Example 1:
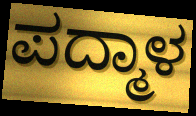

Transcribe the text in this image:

ಪದ್ಮಾಳ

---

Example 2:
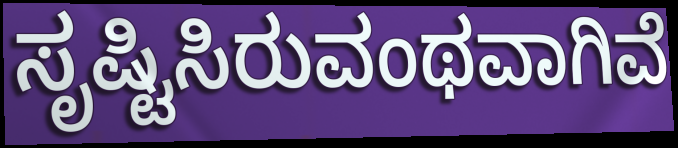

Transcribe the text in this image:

ಸೃಷ್ಟಿಸಿರುವಂಥವಾಗಿವೆ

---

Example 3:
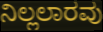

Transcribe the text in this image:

ನಿಲ್ಲಲಾರವು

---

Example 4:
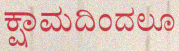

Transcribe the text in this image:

ಕ್ಷಾಮದಿಂದಲೂ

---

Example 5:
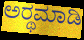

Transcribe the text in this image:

ಅರ್‍ಥಮಾಡಿ